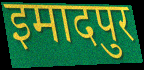
इमादपुर